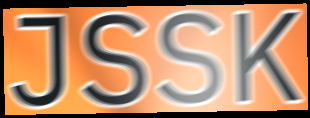
JSSK